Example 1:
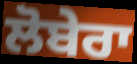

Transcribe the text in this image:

ਲੋਬੇਰਾ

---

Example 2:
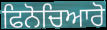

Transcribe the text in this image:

ਫਿਨੋਚਿਆਰੋ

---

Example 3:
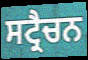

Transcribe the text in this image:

ਸਟ੍ਰੈਚਨ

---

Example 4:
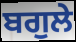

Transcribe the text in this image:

ਬਗੁਲੇ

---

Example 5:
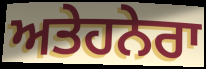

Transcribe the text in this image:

ਅਤੇਹਨੇਰਾ